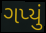
ગપ્યું